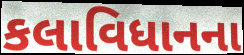
કલાવિધાનના